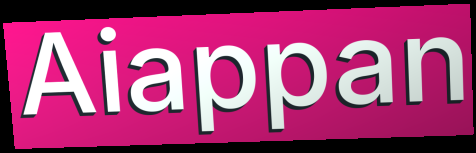
Aiappan